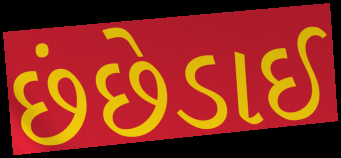
છંછેડાઈ